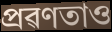
প্ৰৱণতাও